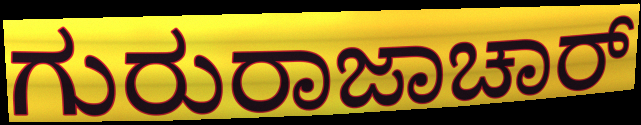
ಗುರುರಾಜಾಚಾರ್